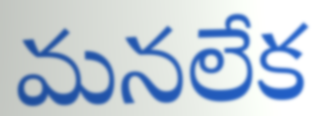
మనలేక